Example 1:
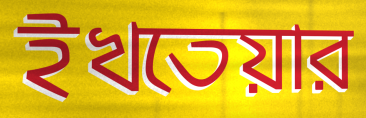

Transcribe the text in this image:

ইখতেয়ার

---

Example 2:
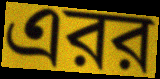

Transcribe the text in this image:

এরর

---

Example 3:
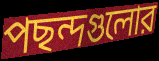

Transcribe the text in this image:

পছন্দগুলোর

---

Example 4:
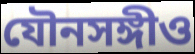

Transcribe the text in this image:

যৌনসঙ্গীও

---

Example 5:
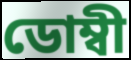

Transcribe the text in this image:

ডোম্বী